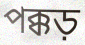
পক্কড়